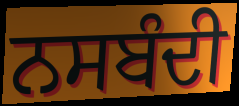
ਨਸਬੰਦੀ